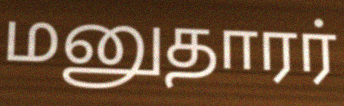
மனுதாரர்